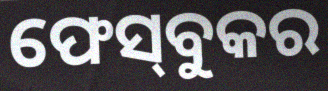
ଫେସ୍‌ବୁକର